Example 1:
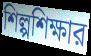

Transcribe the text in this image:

শিল্পশিক্ষার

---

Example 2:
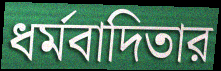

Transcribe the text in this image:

ধর্মবাদিতার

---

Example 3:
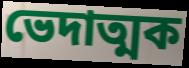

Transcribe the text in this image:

ভেদাত্মক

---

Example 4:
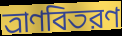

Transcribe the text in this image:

ত্রাণবিতরণ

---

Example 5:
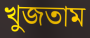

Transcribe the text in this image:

খুজতাম